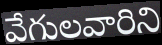
వేగులవారిని